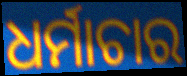
ଧର୍ମାଚାର